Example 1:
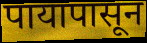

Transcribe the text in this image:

पायापासून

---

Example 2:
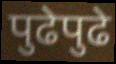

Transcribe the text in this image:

पुढेपुढे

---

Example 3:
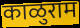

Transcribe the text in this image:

काळुराम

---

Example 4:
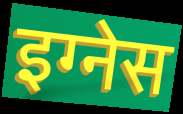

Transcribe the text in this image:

इग्नेस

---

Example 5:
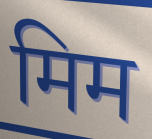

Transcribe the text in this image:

मिम